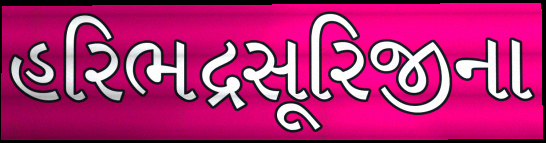
હરિભદ્રસૂરિજીના